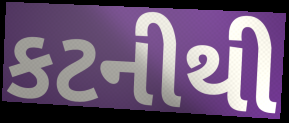
કટનીથી